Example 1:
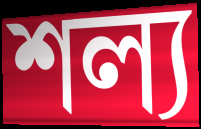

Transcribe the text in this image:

শল্য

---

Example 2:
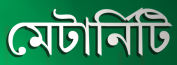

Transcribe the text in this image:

মেটার্নিটি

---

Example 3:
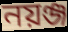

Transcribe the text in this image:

নয়ঞ্জ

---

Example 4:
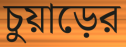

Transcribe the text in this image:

চুয়াড়ের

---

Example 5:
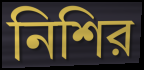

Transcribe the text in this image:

নিশির